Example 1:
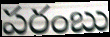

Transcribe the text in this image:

పరంబు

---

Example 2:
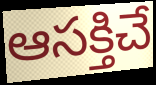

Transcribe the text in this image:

ఆసక్తిచే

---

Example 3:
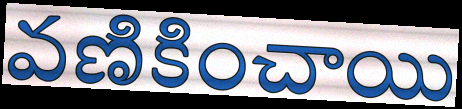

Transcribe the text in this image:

వణికించాయి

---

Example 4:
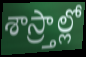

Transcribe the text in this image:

శాస్ర్తాల్లో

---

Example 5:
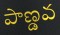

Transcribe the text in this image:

పాణ్డవ